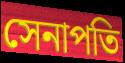
সেনাপতি